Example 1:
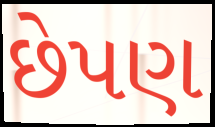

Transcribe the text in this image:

છેપણ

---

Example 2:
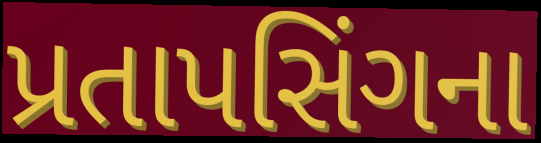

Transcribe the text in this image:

પ્રતાપસિંગના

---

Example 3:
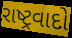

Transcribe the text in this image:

રાષ્ટ્રવાદો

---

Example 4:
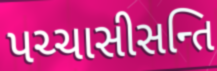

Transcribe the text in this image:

પચ્ચાસીસન્તિ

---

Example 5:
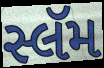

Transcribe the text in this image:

સ્લૅમ